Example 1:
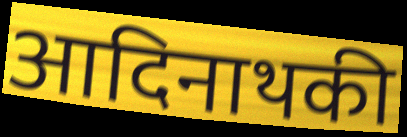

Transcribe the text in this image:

आदिनाथकी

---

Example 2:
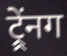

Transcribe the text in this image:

ट्र्रेंनग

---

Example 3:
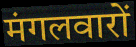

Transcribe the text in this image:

मंगलवारों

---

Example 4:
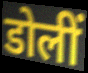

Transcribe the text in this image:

डोलीं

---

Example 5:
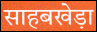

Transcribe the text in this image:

साहबखेड़ा